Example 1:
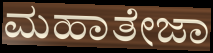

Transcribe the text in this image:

ಮಹಾತೇಜಾ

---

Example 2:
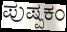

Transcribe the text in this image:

ಪುಷ್ಪಕಂ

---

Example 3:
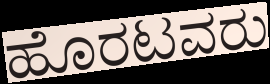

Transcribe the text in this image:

ಹೊರಟವರು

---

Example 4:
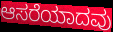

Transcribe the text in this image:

ಆಸರೆಯಾದವು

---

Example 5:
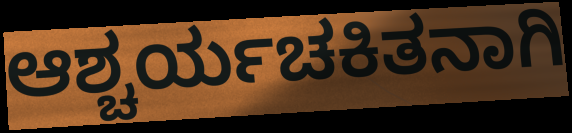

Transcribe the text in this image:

ಆಶ್ಚರ್ಯಚಕಿತನಾಗಿ